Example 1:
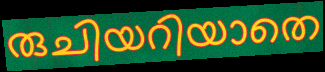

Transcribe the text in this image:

രുചിയറിയാതെ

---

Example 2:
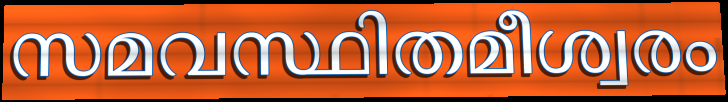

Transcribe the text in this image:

സമവസ്ഥിതമീശ്വരം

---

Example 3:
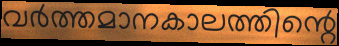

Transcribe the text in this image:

വർത്തമാനകാലത്തിന്റെ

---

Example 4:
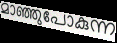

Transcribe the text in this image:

മാഞ്ഞുപോകുന്ന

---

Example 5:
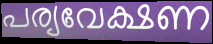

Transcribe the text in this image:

പര്യവേക്ഷണ